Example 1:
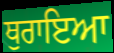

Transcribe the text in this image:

ਥੁਰਾਇਆ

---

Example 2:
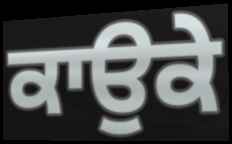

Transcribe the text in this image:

ਕਾਉਕੇ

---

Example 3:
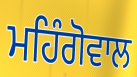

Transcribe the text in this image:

ਮਹਿੰਗੋਵਾਲ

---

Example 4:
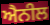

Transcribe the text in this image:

ਐਨੀਲ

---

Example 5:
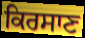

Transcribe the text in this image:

ਕਿਰਸਾਣ